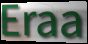
Eraa